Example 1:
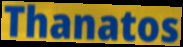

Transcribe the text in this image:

Thanatos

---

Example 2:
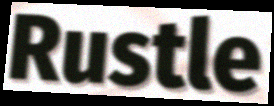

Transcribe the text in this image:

Rustle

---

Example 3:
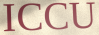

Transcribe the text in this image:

ICCU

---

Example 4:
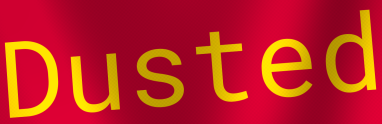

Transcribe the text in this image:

Dusted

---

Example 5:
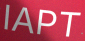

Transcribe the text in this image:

IAPT